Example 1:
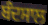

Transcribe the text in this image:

ਬੰਦਸਾਲ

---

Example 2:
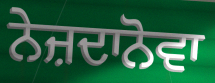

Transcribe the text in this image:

ਨੇਜ਼ਦਾਨੋਵਾ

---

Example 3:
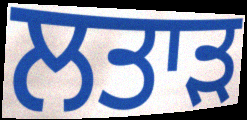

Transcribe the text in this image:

ਲਤਾੜ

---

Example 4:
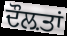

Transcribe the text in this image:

ਦੌਲ਼ਤਾਂ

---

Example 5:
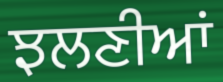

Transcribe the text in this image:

ਝਲਣੀਆਂ